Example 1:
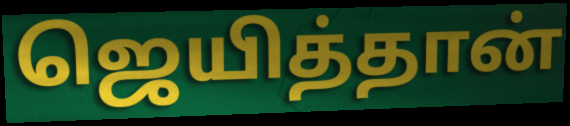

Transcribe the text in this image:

ஜெயித்தான்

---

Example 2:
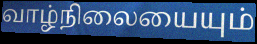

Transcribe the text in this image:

வாழ்நிலையையும்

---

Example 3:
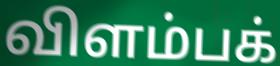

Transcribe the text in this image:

விளம்பக்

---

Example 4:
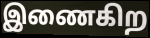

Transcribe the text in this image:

இணைகிற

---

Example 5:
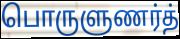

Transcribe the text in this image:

பொருளுணர்த்